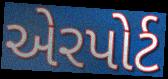
એરપોર્ટ